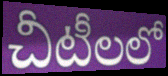
చీటీలలో